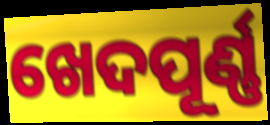
ଖେଦପୂର୍ଣ୍ଣ